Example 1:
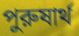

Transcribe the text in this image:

পুরুষার্থ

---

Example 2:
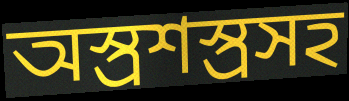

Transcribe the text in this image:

অস্ত্রশস্ত্রসহ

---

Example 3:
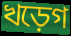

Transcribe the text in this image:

খড়েগ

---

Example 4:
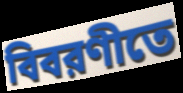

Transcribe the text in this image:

বিবরণীতে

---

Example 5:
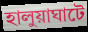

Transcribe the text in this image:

হালুয়াঘাটে